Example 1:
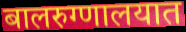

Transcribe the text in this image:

बालरुग्णालयात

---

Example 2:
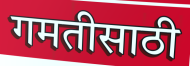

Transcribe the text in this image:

गमतीसाठी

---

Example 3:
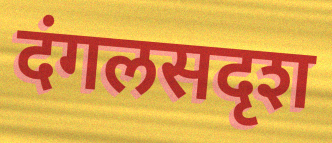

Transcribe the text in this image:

दंगलसदृश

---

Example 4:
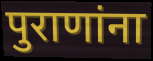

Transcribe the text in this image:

पुराणांना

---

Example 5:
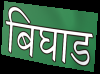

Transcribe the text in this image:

बिघाड